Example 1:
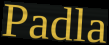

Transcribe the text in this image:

Padla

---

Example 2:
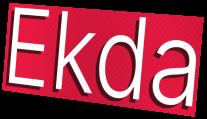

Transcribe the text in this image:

Ekda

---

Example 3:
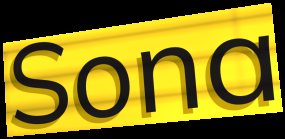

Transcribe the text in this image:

Sona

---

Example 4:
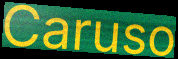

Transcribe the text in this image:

Caruso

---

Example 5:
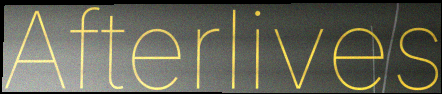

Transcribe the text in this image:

Afterlives